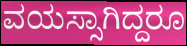
ವಯಸ್ಸಾಗಿದ್ದರೂ